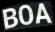
BOA